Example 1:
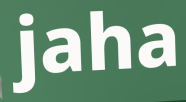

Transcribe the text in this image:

jaha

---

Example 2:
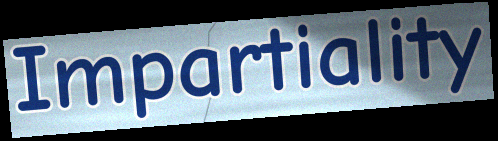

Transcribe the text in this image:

Impartiality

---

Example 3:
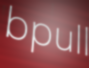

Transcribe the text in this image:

bpull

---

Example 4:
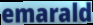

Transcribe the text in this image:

emarald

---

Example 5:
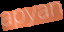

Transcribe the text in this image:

apyan